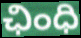
ఛింధి